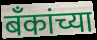
बॅँकांच्या